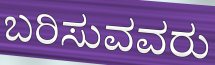
ಬರಿಸುವವರು